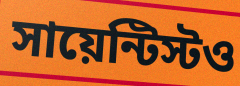
সায়েন্টিস্টও